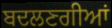
ਬਦਲਣਗੀਆਂ